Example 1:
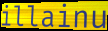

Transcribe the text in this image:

illainu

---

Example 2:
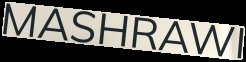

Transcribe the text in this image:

MASHRAWI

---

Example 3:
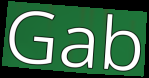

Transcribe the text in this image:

Gab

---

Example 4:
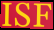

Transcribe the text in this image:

ISF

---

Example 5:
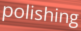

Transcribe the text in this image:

polishing